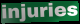
injuries